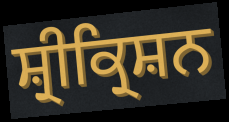
ਸ਼੍ਰੀਕ੍ਰਿਸ਼ਨ